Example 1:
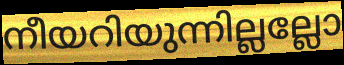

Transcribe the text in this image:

നീയറിയുന്നില്ലല്ലോ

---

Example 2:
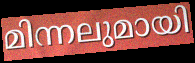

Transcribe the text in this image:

മിന്നലുമായി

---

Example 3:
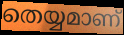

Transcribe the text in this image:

തെയ്യമാണ്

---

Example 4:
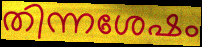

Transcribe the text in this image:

തിന്നശേഷം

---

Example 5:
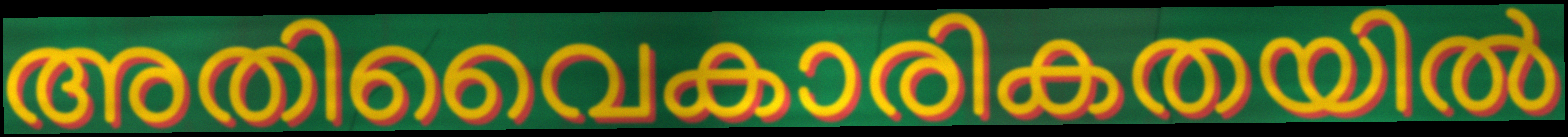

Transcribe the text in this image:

അതിവൈകാരികതയിൽ